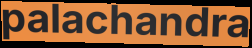
palachandra